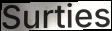
Surties